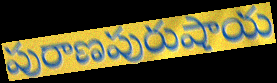
పురాణపురుషాయ